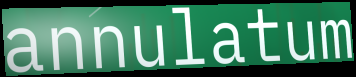
annulatum